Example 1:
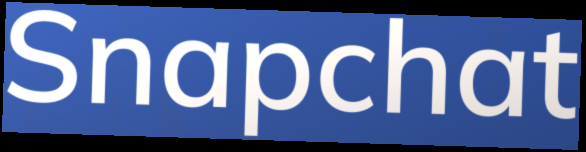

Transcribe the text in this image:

Snapchat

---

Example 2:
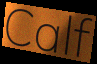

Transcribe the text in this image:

Calf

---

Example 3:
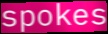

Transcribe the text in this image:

spokes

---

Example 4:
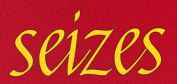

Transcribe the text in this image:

seizes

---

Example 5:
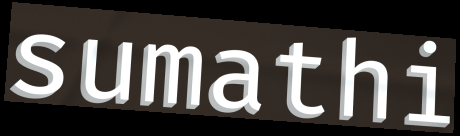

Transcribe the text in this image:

sumathi